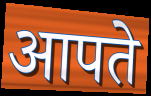
आपते